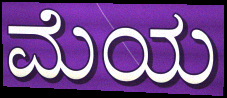
ಮೆಯ